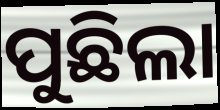
ପୁଛିଲା